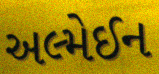
અલ્મેઈન